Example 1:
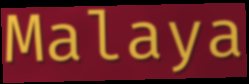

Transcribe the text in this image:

Malaya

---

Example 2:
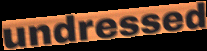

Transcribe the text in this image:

undressed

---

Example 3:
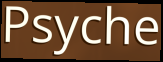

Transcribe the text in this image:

Psyche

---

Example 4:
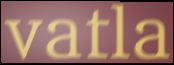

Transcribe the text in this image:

vatla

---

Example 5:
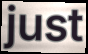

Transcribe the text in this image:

just